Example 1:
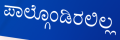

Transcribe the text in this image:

ಪಾಲ್ಗೊಂಡಿರಲಿಲ್ಲ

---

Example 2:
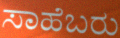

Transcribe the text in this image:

ಸಾಹೆಬರು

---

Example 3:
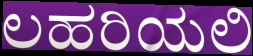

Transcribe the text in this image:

ಲಹರಿಯಲಿ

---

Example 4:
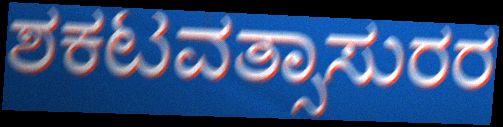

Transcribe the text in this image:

ಶಕಟವತ್ಸಾಸುರರ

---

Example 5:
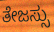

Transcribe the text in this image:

ತೇಜಸ್ಸು